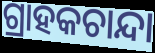
ଗ୍ରାହକଚାନ୍ଦା